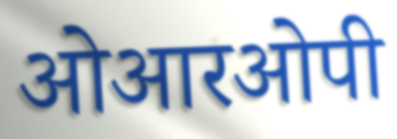
ओआरओपी